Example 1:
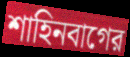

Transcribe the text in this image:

শাহিনবাগের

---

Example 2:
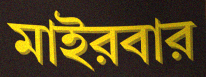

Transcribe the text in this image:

মাইরবার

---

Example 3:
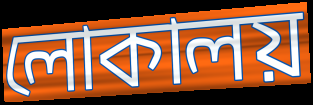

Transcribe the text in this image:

লোকালয়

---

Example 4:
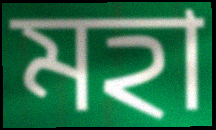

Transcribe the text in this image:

মহা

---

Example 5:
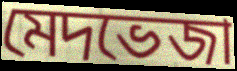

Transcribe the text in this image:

মেদভেজা